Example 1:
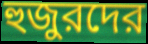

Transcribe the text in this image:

হুজুরদের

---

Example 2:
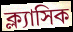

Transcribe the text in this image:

ক্ল্যাসিক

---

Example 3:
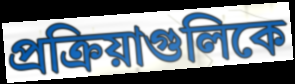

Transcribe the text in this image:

প্রক্রিয়াগুলিকে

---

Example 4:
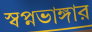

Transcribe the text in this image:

স্বপ্নভাঙ্গার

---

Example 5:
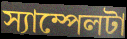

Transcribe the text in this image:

স্যাম্পেলটা